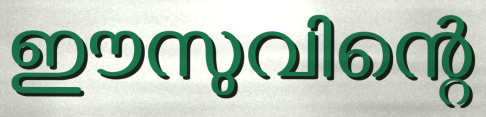
ഈസുവിന്റെ